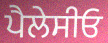
ਪੈਲੇਸੀਓ